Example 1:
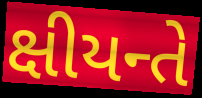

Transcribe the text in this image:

ક્ષીયન્તે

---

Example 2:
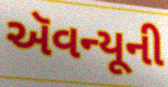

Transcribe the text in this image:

ઍવન્યૂની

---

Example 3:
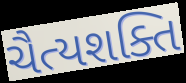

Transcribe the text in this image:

ચૈત્યશક્તિ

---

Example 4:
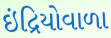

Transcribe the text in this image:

ઇંદ્રિયોવાળા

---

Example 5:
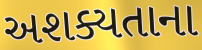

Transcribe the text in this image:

અશક્યતાના